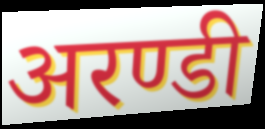
अरण्डी